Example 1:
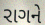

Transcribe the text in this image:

રાગને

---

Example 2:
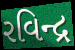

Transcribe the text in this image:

રવિન્દ્ર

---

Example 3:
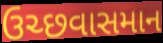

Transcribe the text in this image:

ઉચ્છવાસમાન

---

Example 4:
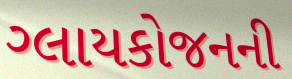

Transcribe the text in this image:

ગ્લાયકોજનની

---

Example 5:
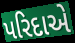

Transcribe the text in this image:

પરિદાએ